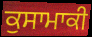
ਕੁਸਾਮਾਕੀ